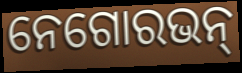
ନେଗୋରଭନ୍